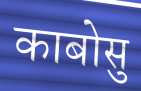
काबोसु